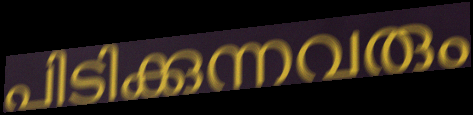
പിടിക്കുന്നവരും